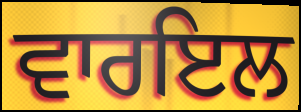
ਵਾਰਇਲ